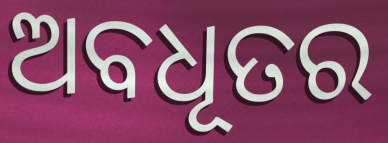
ଅବଧୂତର